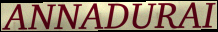
ANNADURAI